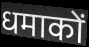
धमाकों